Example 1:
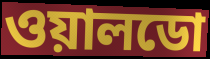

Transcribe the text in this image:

ওয়ালডো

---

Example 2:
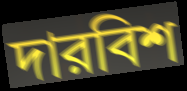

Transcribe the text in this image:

দারবিশ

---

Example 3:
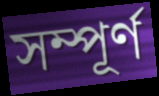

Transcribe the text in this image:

সম্পূর্ণ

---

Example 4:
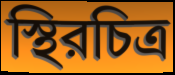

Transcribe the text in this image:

স্থিরচিত্র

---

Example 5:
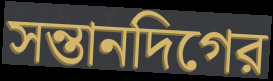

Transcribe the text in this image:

সন্তানদিগের